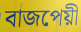
বাজপেয়ী